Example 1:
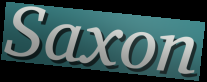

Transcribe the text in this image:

Saxon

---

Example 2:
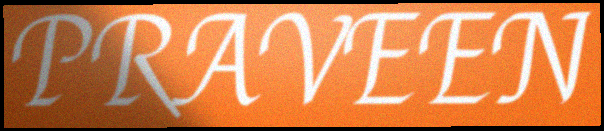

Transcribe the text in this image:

PRAVEEN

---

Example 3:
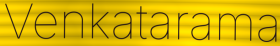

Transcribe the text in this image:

Venkatarama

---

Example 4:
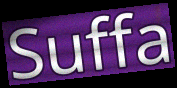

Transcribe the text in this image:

Suffa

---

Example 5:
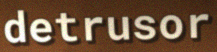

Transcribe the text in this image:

detrusor